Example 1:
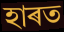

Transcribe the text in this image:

হাৰত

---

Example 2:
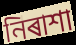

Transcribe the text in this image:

নিৰাশা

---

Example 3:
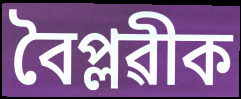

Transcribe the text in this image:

বৈপ্লৱীক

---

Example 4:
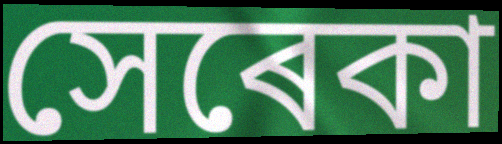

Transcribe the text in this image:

সেৰেকা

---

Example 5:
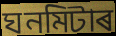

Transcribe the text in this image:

ঘনমিটাৰ